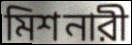
মিশনারী